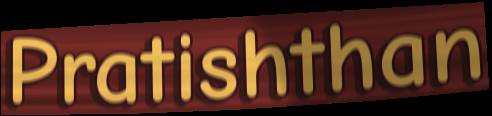
Pratishthan